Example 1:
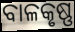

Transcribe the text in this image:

ବାଳକୃଷ୍ଣ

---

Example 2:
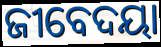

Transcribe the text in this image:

ଜୀବେଦୟା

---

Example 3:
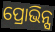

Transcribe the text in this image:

ପ୍ରୋଭିନ୍ସ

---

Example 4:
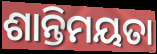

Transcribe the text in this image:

ଶାନ୍ତିମୟତା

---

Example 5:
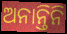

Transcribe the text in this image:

ଅନାନ୍ତିନି